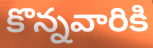
కొన్నవారికి